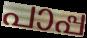
പാപ്പ